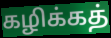
கழிக்கத்